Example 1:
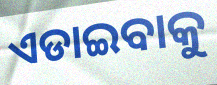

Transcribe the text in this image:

ଏଡାଇବାକୁ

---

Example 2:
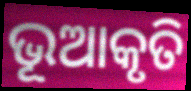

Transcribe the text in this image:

ଭୂଆକୃତି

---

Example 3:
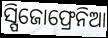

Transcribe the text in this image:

ସ୍ପିଜୋଫ୍ରେନିଆ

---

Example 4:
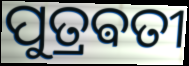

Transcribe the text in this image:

ପୁତ୍ରଵତୀ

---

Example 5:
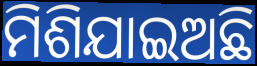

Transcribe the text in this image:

ମିଶିଯାଇଅଛି